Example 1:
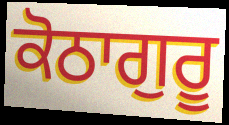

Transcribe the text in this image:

ਕੋਠਾਗੁਰੂ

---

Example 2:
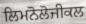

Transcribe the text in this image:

ਲਿਮਨੋਲੋਜੀਕਲ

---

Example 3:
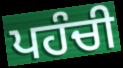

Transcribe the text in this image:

ਪਹੰਚੀ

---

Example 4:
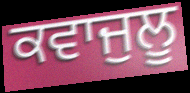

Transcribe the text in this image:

ਕਵਾਜੁਲੂ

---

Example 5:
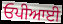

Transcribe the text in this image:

ਓਪੀਆਈ